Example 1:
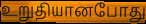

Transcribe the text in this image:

உறுதியானபோது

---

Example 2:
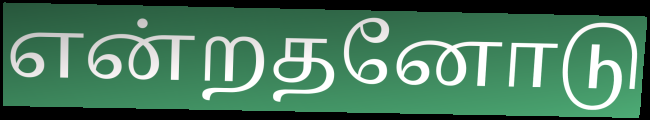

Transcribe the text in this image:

என்றதனோடு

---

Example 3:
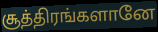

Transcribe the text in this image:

சூத்திரங்களானே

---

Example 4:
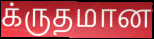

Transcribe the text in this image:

க்ருதமான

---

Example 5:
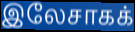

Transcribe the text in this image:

இலேசாகக்